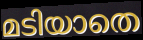
മടിയാതെ